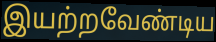
இயற்றவேண்டிய